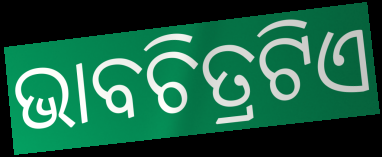
ଭାବଚିତ୍ରଟିଏ